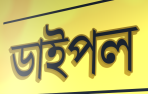
ডাইপল